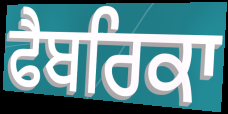
ਫੈਬਰਿਕਾ